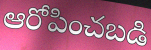
ఆరోపించబడి